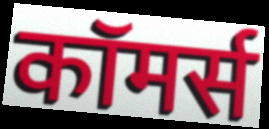
कॉमर्स